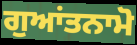
ਗੁਆਂਤਨਾਮੋ